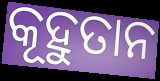
କୂହୁତାନ